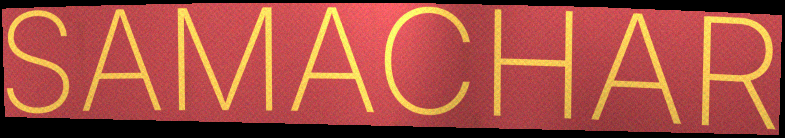
SAMACHAR